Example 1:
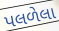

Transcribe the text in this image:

પલળેલા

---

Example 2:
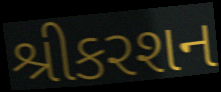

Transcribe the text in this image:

શ્રીકરશન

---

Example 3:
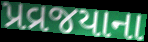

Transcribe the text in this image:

પ્રવ્રજયાના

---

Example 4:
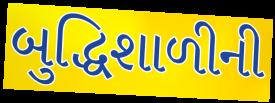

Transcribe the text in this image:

બુદ્ધિશાળીની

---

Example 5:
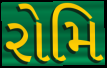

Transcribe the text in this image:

રોમિ